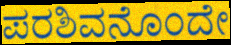
ಪರಶಿವನೊಂದೇ